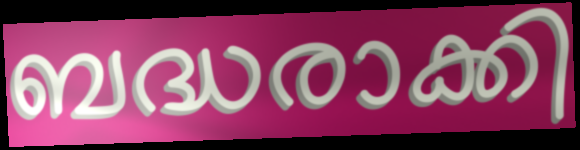
ബദ്ധരാക്കി